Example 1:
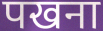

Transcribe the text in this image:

पखना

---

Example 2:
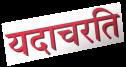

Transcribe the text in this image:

यदाचरति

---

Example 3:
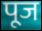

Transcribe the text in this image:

पूज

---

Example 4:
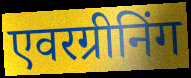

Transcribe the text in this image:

एवरग्रीनिंग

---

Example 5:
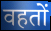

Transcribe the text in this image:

वहतों